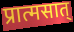
प्रात्मसात्